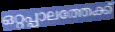
ഒറ്റപ്പാലത്തേക്ക്